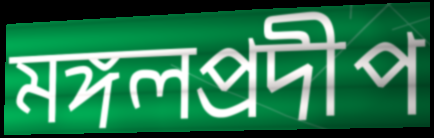
মঙ্গলপ্রদীপ